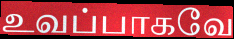
உவப்பாகவே